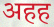
अहह